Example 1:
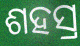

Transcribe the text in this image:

ଶହସ୍ର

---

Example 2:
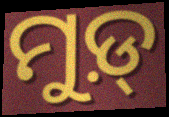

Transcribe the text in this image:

ମୁଡ଼୍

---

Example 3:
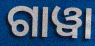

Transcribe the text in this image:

ଗାୱା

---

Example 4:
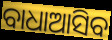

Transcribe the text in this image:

ବାଧାଆସିବ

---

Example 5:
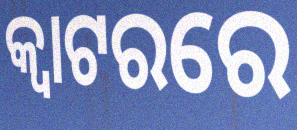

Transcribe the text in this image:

କ୍ୱାଟରରେ